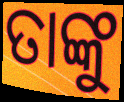
ତାଙ୍କୁ